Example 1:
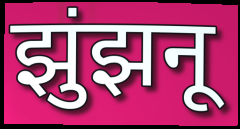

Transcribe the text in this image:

झुंझनू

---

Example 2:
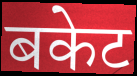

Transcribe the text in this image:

बकेट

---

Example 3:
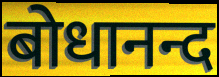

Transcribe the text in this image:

बोधानन्द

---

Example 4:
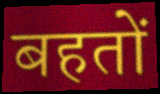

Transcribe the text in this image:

बहतों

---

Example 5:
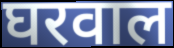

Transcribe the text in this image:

घरवाल